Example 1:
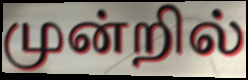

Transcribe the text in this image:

முன்றில்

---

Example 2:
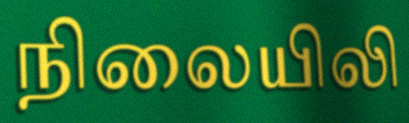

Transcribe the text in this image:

நிலையிலி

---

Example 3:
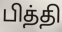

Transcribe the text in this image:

பித்தி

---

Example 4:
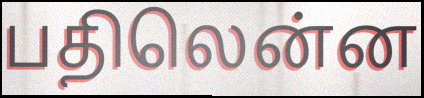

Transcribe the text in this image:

பதிலென்ன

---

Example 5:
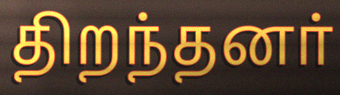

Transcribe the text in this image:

திறந்தனர்